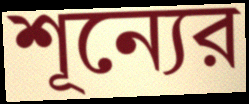
শূন্যের